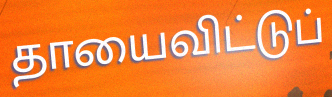
தாயைவிட்டுப்